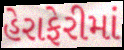
હેરાફેરીમાં